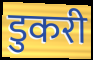
डुकरी